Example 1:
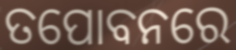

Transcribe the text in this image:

ତପୋବନରେ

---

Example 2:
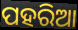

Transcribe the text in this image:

ପହରିଆ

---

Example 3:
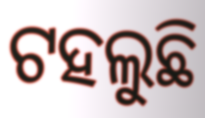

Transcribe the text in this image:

ଟହଲୁଛି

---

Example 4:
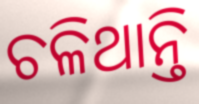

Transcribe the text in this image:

ଚଳିଥାନ୍ତି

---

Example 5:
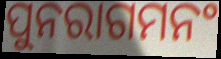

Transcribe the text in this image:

ପୁନରାଗମନଂ